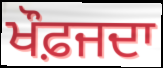
ਖੌਫ਼ਜਦਾ